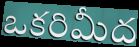
ఒకరిమీద